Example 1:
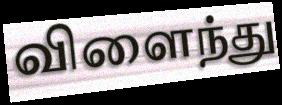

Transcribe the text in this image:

விளைந்து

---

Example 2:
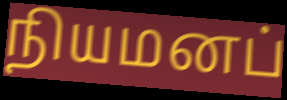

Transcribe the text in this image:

நியமனப்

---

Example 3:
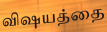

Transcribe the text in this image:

விஷயத்தை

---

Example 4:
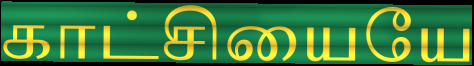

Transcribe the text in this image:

காட்சியையே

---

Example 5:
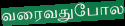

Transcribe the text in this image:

வரைவதுபோல